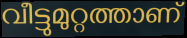
വീട്ടുമുറ്റത്താണ്